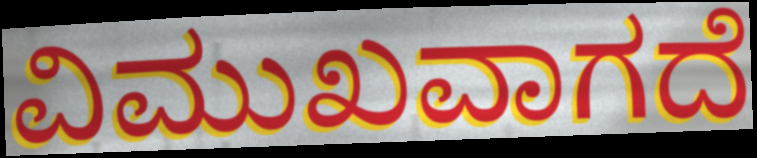
ವಿಮುಖವಾಗದೆ